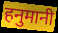
हनुमानी